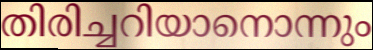
തിരിച്ചറിയാനൊന്നും